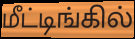
மீட்டிங்கில்